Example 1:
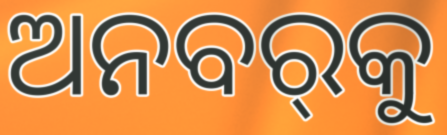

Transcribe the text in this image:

ଅନବର୍‌କୁ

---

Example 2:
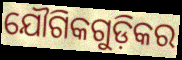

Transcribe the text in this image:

ଯୌଗିକଗୁଡ଼ିକର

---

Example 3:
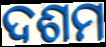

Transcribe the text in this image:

ଦଶମ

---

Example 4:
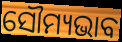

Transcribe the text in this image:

ସୌମ୍ୟଭାବ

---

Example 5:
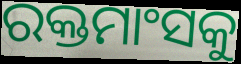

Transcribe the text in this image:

ରକ୍ତମାଂସକୁ